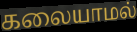
கலையாமல்